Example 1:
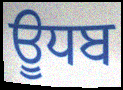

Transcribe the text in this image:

ਊਧਬ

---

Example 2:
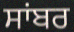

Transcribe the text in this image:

ਸਾਂਬਰ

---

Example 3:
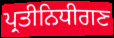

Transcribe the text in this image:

ਪ੍ਰਤੀਨਿਧੀਗਣ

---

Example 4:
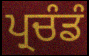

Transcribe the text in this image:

ਪ੍ਰਚੰਡੰ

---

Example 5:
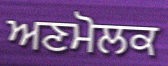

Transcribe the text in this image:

ਅਣਮੋਲਕ